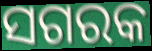
ସଗରକ